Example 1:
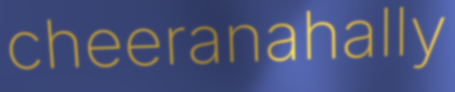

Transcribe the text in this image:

cheeranahally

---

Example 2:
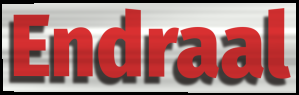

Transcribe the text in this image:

Endraal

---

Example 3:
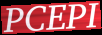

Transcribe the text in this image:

PCEPI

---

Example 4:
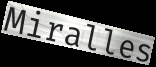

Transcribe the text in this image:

Miralles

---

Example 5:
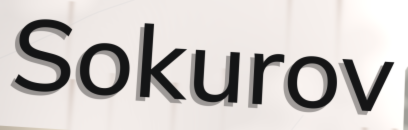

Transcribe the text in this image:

Sokurov